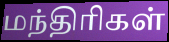
மந்திரிகள்